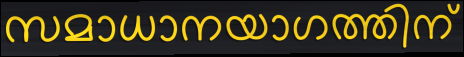
സമാധാനയാഗത്തിന്